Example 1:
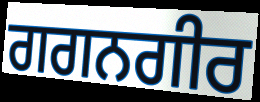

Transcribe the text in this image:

ਗਗਨਗੀਰ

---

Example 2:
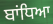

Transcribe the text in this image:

ਬਾਂਧਿਆ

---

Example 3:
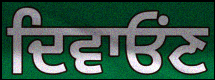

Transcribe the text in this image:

ਦਿਵਾਓੰਣ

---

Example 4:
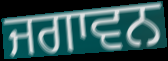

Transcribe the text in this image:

ਜਗਾਵਨ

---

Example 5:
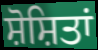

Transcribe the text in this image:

ਸ਼ੋਸ਼ਿਤਾਂ